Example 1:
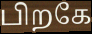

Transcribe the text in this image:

பிறகே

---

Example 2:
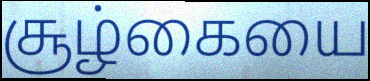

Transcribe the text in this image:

சூழ்கையை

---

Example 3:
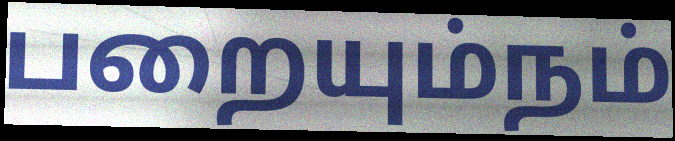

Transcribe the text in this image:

பறையும்நம்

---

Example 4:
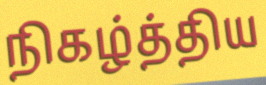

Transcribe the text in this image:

நிகழ்த்திய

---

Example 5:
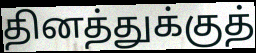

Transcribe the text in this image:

தினத்துக்குத்